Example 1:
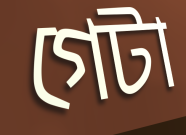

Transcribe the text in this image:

গেটা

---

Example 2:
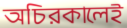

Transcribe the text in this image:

অচিরকালেই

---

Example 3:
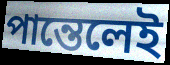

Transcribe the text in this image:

পান্তেলেই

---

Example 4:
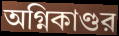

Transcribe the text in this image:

অগ্নিকাণ্ডর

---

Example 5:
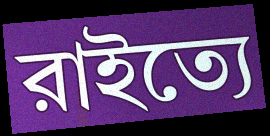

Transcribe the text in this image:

রাইত্যে